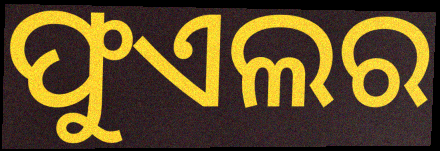
ଫୁଏଲର